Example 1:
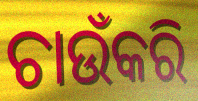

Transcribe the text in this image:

ଚାଉଁକରି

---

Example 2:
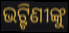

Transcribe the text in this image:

ଭଟ୍ଟିଣୀଙ୍କୁ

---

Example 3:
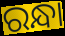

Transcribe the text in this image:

ରନ୍ଧା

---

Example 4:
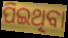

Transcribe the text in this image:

ପିଇଥିବା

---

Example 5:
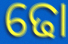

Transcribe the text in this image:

ଢୋ